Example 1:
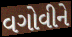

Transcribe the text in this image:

વગોવીને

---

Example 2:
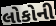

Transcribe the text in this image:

લોકોની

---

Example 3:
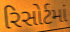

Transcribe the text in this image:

રિસોર્ટમાં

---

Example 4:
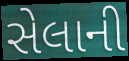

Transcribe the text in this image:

સેલાની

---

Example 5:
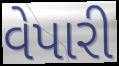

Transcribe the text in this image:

વેપારી